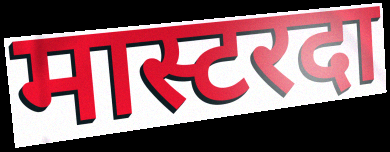
मास्टरदा